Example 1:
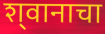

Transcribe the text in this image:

श्वानाचा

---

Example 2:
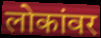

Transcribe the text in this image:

लोकांवर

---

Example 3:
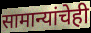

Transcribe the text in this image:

सामान्यांचेही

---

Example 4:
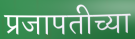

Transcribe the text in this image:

प्रजापतीच्या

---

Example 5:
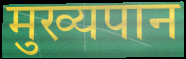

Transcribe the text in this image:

मुख्यपान